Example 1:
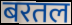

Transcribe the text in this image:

बरतल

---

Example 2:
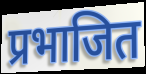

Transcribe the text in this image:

प्रभाजित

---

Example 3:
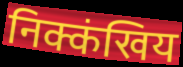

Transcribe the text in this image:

निक्कंखिय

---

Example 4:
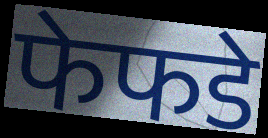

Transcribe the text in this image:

फेफडे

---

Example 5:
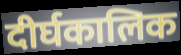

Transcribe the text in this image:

दीर्घकालिक